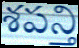
శపన్తి